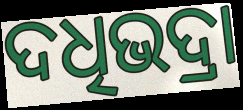
ଦଧିଭଦ୍ରା